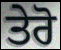
ਤੇਰੋ